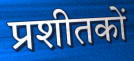
प्रशीतकों